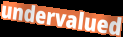
undervalued